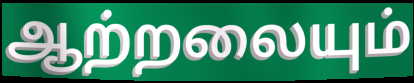
ஆற்றலையும்